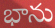
భాను